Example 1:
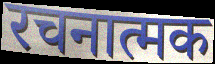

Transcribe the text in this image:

रचनात्मक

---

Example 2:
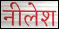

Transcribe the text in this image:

नीलेश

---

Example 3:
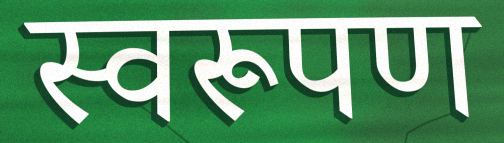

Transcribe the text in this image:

स्वरूपण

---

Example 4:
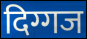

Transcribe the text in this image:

दिग्गज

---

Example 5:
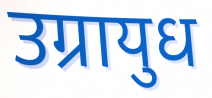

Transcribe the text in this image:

उग्रायुध